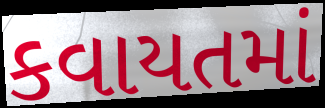
કવાયતમાં